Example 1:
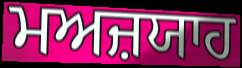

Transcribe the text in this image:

ਮਅਜ਼ਯਾਹ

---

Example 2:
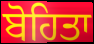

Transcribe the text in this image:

ਬੋਹਿਤਾ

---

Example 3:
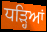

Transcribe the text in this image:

ਧੜ੍ਹਿਆਂ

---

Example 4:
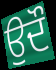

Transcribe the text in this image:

ਉਦੌ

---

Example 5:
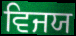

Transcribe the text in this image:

ਵਿਜਯ